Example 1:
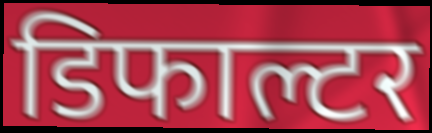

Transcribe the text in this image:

डिफाल्टर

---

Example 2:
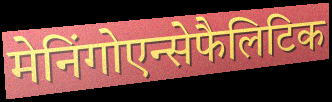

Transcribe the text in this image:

मेनिंगोएन्सेफैलिटिक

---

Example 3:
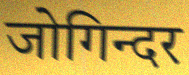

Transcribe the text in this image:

जोगिन्दर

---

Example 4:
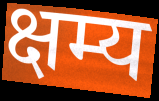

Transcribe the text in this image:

क्षम्य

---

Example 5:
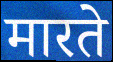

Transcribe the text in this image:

मारते